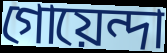
গোয়েন্দা